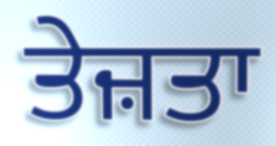
ਤੇਜ਼ਤਾ